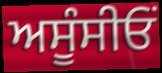
ਅਸੂੰਸੀਓਂ